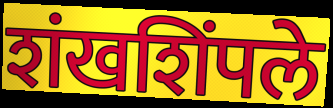
शंखशिंपले